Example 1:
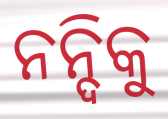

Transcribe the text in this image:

ନନ୍ଦିକୁ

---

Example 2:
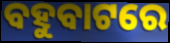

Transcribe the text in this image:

ବହୁବାଟରେ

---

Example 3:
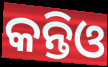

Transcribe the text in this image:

କନ୍ତିଓ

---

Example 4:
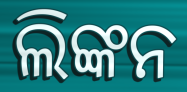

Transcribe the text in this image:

ଲିଙ୍କନ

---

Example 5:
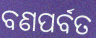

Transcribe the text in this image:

ବଣପର୍ବତ